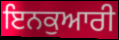
ਇਨਕੁਆਰੀ